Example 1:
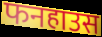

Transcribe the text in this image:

फनहाउस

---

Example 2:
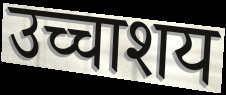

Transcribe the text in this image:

उच्चाशय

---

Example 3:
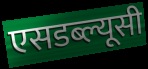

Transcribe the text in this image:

एसडब्ल्यूसी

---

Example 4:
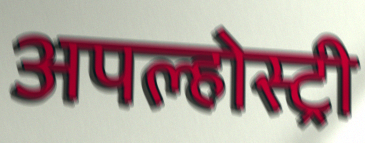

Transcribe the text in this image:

अपल्होस्ट्री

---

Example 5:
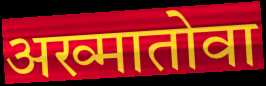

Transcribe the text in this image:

अख्मातोवा